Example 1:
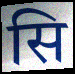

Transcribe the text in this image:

सि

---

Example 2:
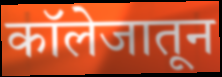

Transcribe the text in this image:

कॉलेजातून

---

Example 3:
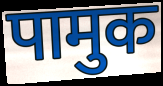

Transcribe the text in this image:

पामुक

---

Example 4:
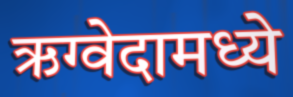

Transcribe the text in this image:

ऋग्वेदामध्ये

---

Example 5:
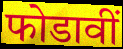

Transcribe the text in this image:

फोडावीं